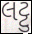
લટ્ટુ